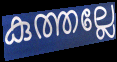
കുത്തല്ലേ